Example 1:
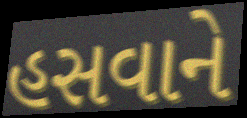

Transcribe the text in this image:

હસવાને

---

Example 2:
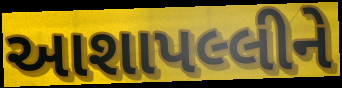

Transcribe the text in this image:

આશાપલ્લીને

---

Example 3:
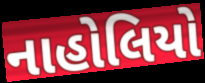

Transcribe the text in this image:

નાહોલિયો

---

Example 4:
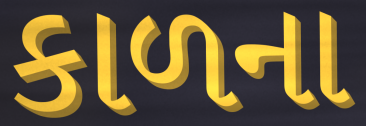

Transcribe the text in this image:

કાળના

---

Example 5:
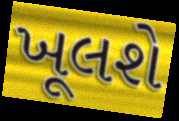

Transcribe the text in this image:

ખૂલશે